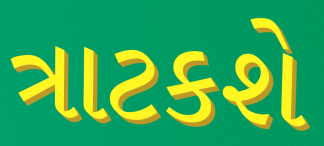
ત્રાટકશે